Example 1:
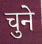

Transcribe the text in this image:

चुने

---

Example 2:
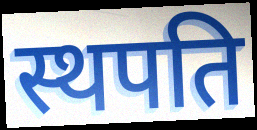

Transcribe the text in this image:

स्थपति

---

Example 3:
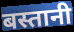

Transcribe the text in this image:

बस्तानी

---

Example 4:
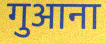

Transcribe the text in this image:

गुआना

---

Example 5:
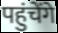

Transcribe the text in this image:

पहुंचेंगे